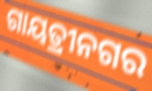
ଗାୟତ୍ରୀନଗର